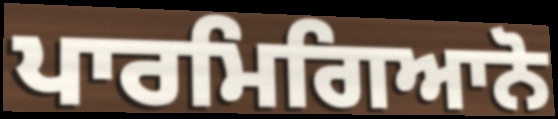
ਪਾਰਮਿਗਿਆਨੋ